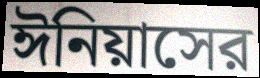
ঈনিয়াসের